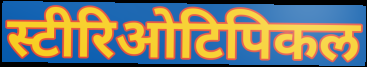
स्टीरिओटिपिकल